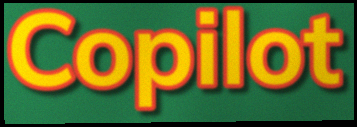
Copilot